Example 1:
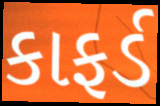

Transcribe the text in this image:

કાફર્ડ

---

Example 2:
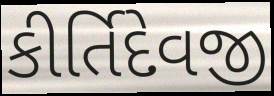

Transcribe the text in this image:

કીર્તિદેવજી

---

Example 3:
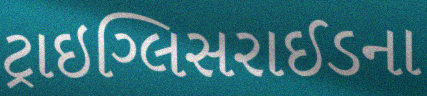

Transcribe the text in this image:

ટ્રાઇગ્લિસરાઈડના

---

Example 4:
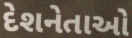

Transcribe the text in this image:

દેશનેતાઓ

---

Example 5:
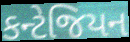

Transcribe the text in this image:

કન્ટેજિયન